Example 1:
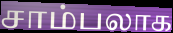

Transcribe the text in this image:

சாம்பலாக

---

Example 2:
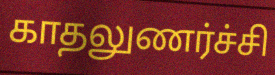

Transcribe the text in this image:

காதலுணர்ச்சி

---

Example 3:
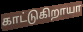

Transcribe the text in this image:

காட்டுகிறாயா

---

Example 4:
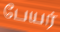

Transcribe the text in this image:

பேயர்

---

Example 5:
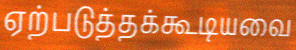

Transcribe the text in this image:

ஏற்படுத்தக்கூடியவை